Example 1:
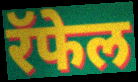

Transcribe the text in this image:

रॅफेल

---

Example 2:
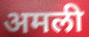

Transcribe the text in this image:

अमली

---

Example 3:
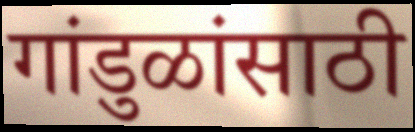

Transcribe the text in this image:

गांडुळांसाठी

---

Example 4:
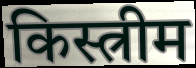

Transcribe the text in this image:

किस्त्रीम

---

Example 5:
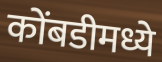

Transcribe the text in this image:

कोंबडीमध्ये